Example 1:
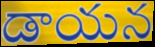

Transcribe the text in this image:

డాయన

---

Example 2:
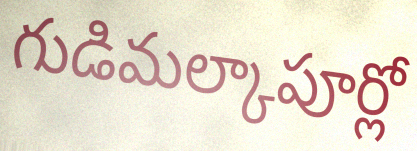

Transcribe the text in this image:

గుడిమల్కాపూర్లో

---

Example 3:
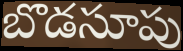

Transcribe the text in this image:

బొడసూపు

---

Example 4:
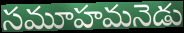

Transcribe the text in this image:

సమూహమనెడు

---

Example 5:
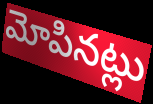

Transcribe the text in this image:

మోపినట్లు